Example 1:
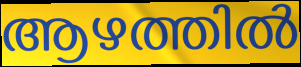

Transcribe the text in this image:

ആഴത്തിൽ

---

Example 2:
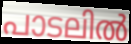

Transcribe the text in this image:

പാടലിൽ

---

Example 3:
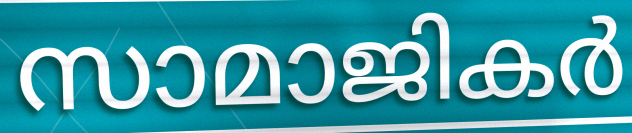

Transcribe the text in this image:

സാമാജികർ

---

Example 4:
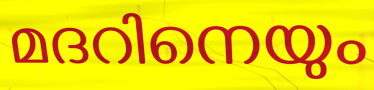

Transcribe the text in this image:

മദറിനെയും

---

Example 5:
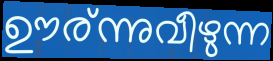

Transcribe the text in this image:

ഊര്ന്നുവീഴുന്ന